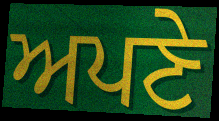
ਅਪਣੇ